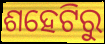
ଶହେଟିରୁ